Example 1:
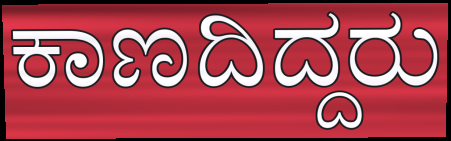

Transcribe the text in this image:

ಕಾಣದಿದ್ದರು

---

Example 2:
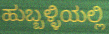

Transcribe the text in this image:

ಹುಬ್ಬಳ್ಳಿಯಲ್ಲಿ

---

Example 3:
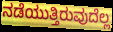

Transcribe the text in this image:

ನಡೆಯುತ್ತಿರುವುದೆಲ್ಲ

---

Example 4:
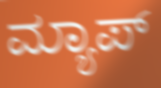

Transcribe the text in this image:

ಮ್ಯಾಪ್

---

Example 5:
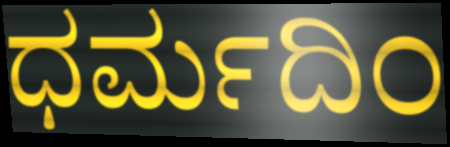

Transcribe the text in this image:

ಧರ್ಮದಿಂ